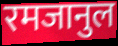
रमजानुल